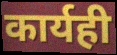
कार्यही